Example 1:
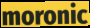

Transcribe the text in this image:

moronic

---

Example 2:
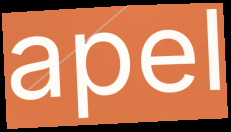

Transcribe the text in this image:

apel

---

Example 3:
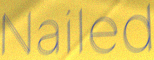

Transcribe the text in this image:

Nailed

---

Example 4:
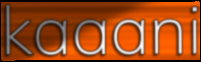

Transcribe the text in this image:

kaaani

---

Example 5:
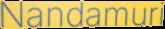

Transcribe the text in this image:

Nandamuri